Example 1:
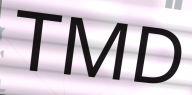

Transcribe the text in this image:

TMD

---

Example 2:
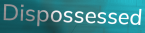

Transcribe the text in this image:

Dispossessed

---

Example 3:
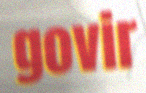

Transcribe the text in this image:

govir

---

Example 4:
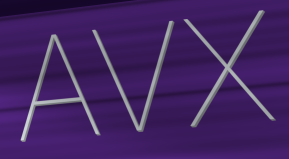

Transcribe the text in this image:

AVX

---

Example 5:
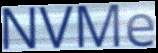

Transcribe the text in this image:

NVMe